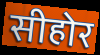
सीहोर